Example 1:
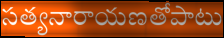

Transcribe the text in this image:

సత్యనారాయణతోపాటు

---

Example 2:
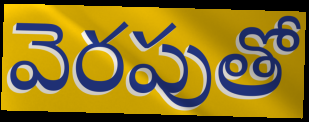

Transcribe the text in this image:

వెరపుతో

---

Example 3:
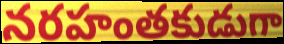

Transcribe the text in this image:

నరహంతకుడుగా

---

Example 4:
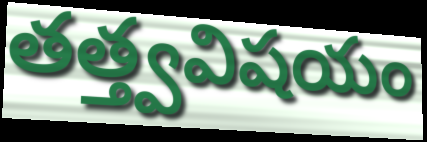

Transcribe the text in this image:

తత్త్వవిషయం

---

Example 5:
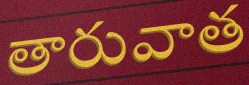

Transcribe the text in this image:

తారువాత